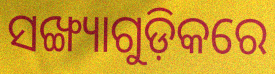
ସଙ୍ଖ୍ୟାଗୁଡ଼ିକରେ